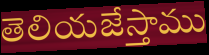
తెలియజేస్తాము